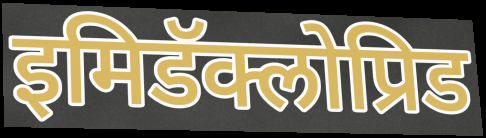
इमिडॅक्लोप्रिड